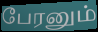
பேரனும்